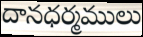
దానధర్మములు